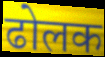
ढोलक